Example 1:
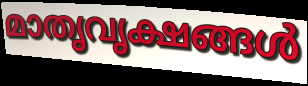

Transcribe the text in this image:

മാതൃവൃക്ഷങ്ങൾ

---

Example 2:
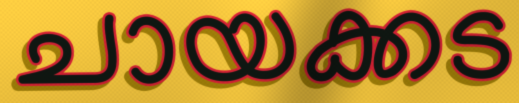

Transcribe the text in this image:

ചായക്കട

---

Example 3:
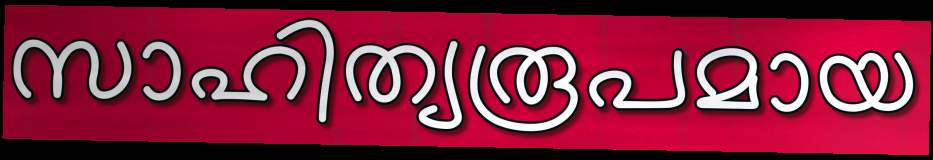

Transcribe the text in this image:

സാഹിത്യരൂപമായ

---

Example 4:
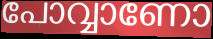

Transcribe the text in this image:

പോവ്വാണോ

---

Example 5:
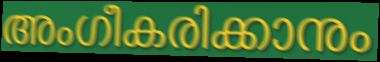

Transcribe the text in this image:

അംഗീകരിക്കാനും